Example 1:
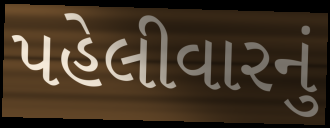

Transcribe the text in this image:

પહેલીવારનું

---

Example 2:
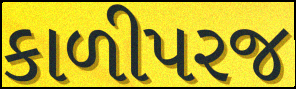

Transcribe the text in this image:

કાળીપરજ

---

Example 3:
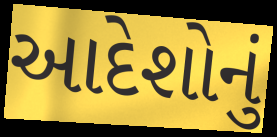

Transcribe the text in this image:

આદેશોનું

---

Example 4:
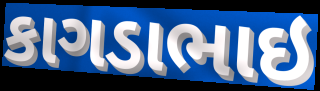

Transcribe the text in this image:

કાગડાભાઇ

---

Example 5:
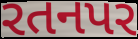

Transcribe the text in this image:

રતનપર